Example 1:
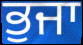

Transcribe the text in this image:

ਭੁਜਾ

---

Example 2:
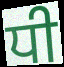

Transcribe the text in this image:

ਧੀ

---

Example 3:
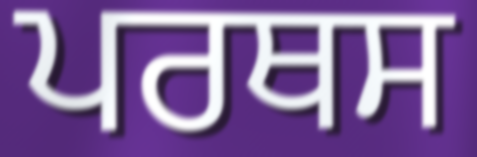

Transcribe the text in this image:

ਪਰਥਸ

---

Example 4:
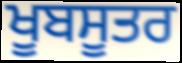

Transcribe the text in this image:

ਖੂਬਸੂਤਰ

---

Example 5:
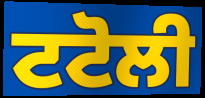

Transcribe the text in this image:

ਟਟੋਲੀ